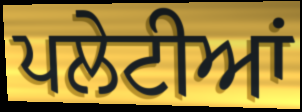
ਪਲੇਟੀਆਂ